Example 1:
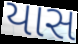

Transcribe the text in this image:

યાસ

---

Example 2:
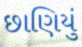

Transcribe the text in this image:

છાણિયું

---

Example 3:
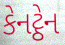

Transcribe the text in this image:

કેનટ્ઠેન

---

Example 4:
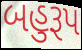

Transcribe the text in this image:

બહુરૂપ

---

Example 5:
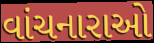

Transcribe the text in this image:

વાંચનારાઓ